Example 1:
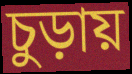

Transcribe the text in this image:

চুড়ায়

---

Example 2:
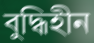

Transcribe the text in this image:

বুদ্ধিহীন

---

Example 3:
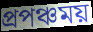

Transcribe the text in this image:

প্রপঞ্চময়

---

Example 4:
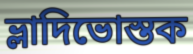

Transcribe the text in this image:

ভ্লাদিভোস্তক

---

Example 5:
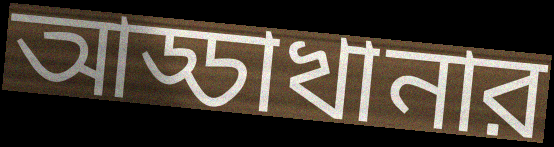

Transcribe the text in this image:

আড্ডাখানার